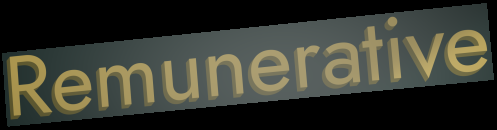
Remunerative